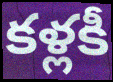
కళ్లకీ